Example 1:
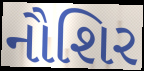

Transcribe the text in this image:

નૌશિર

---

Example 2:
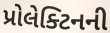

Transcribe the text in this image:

પ્રોલેક્ટિનની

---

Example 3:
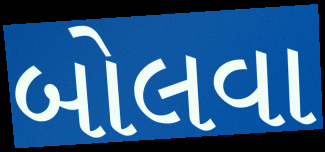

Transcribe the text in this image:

બોલવા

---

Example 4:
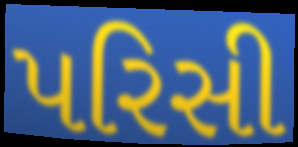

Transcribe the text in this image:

પરિસી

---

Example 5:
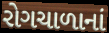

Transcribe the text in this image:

રોગચાળાનાં